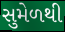
સુમેળથી